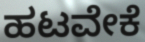
ಹಟವೇಕೆ